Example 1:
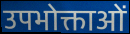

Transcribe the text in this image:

उपभोक्ताओं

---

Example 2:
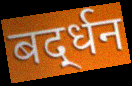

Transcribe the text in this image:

बर्द्धन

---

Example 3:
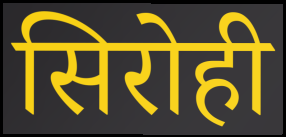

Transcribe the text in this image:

सिरोही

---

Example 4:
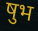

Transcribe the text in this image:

षुभ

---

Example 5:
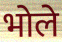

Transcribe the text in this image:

भोले